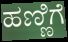
ಹಣ್ಣಿಗೆ